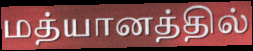
மத்யானத்தில்